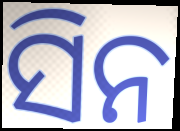
ସିନ